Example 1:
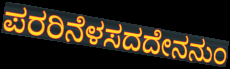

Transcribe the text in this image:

ಪರರಿನೆಳಸದದೇನನುಂ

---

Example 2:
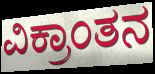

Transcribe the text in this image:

ವಿಕ್ರಾಂತನ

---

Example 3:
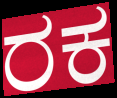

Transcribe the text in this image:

ರಕ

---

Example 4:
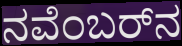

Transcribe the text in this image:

ನವೆಂಬರ್‌ನ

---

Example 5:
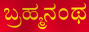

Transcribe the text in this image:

ಬ್ರಹ್ಮನಂಥ